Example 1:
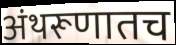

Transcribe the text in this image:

अंथरूणातच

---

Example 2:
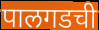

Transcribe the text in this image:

पालगडची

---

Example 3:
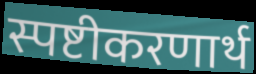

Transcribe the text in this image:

स्पष्टीकरणार्थ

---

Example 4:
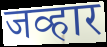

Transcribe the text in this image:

जव्हार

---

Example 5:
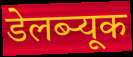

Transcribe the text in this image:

डेलब्ऱ्यूक